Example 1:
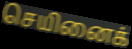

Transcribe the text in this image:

செயினைக்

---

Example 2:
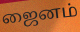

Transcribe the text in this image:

ஜைனம்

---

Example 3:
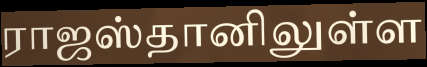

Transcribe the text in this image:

ராஜஸ்தானிலுள்ள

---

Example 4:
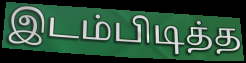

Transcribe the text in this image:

இடம்பிடித்த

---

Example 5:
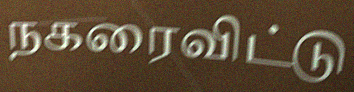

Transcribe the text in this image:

நகரைவிட்டு